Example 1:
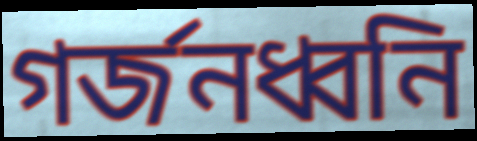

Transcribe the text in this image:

গর্জনধ্বনি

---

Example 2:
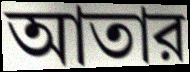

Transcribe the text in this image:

আতার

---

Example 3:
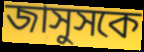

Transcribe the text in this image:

জাসুসকে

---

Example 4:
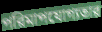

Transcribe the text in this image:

পরিমাপযোগ্যতার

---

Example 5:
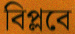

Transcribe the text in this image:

বিপ্লবে